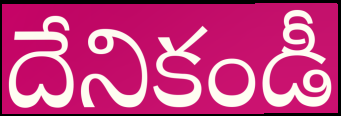
దేనికండీ